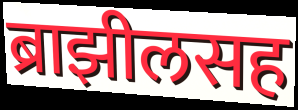
ब्राझीलसह